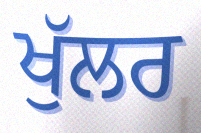
ਖੁੱਲਰ